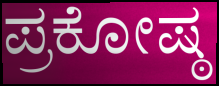
ಪ್ರಕೋಷ್ಠ